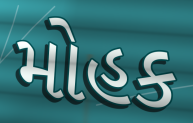
મોહક